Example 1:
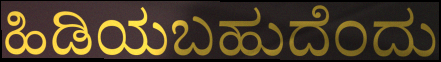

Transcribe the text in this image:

ಹಿಡಿಯಬಹುದೆಂದು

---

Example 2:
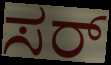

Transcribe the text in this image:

ಸರ್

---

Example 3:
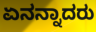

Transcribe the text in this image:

ಏನನ್ನಾದರು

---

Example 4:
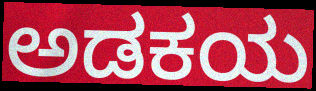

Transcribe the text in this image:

ಅಡಕಯ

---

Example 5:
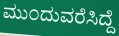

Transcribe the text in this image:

ಮುಂದುವರೆಸಿದ್ದೆ